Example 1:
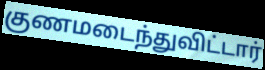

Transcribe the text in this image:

குணமடைந்துவிட்டார்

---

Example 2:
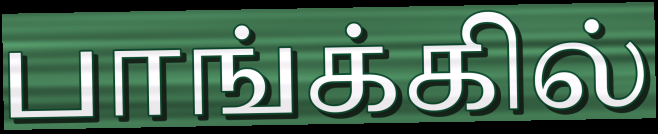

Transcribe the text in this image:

பாங்க்கில்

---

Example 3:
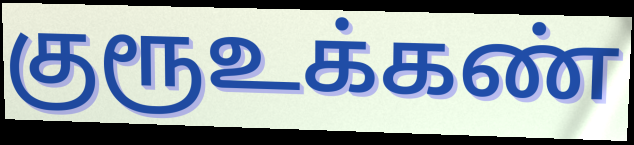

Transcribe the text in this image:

குரூஉக்கண்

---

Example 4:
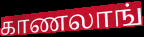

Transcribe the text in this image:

காணலாங்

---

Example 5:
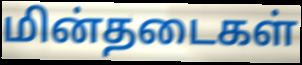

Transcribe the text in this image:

மின்தடைகள்